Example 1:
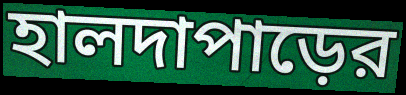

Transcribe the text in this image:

হালদাপাড়ের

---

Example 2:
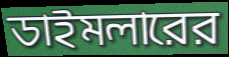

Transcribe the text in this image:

ডাইমলারের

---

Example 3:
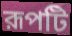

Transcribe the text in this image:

রূপটি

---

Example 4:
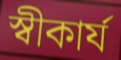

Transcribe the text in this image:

স্বীকার্য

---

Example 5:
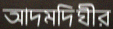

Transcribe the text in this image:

আদমদিঘীর